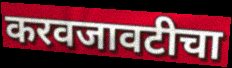
करवजावटीचा